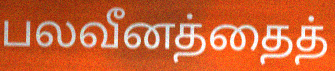
பலவீனத்தைத்